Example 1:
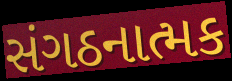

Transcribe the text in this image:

સંગઠનાત્મક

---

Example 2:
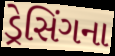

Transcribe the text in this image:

ડ્રેસિંગના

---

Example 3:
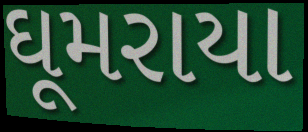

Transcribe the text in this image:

ઘૂમરાયા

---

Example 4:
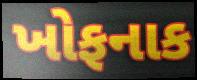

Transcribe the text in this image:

ખોફનાક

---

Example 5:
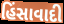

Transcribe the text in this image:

હિંસાવાદી